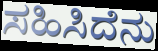
ಸಹಿಸಿದೆನು